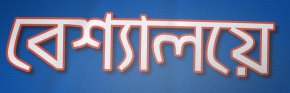
বেশ্যালয়ে